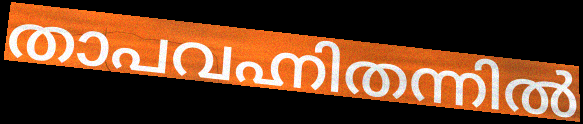
താപവഹ്നിതന്നിൽ